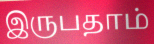
இருபதாம்